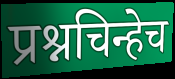
प्रश्नचिन्हेच